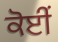
ਕੋਈਂ